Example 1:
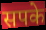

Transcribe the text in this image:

सपके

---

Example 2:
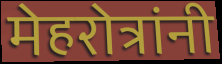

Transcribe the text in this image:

मेहरोत्रांनी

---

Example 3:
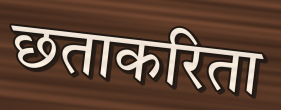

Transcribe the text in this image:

छताकरिता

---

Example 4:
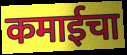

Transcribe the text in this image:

कमाईचा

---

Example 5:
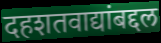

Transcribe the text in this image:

दहशतवाद्यांबद्दल